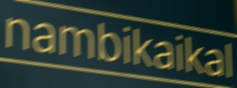
nambikaikal